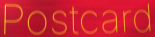
Postcard